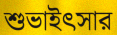
শুভাইৎসার